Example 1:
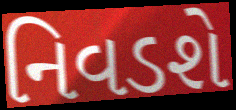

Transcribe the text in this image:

નિવડશે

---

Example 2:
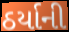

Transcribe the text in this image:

ઠર્યાની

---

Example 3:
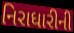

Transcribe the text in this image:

નિરાધારીની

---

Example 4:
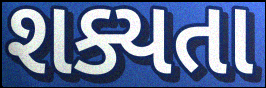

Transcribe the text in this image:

શક્યતા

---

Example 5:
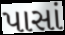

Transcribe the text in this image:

પાસાં